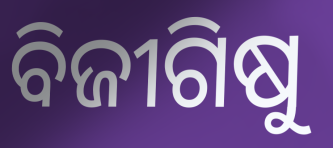
ବିଜୀଗିଷୁ